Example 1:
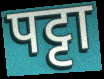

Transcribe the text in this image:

पट्टा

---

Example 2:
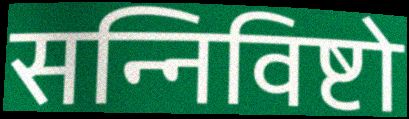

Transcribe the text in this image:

सन्निविष्टो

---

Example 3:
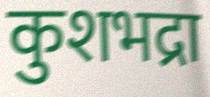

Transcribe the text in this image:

कुशभद्रा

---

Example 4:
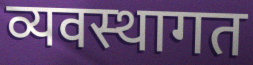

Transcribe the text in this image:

व्यवस्थागत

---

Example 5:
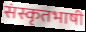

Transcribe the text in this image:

संस्कृतभाषी